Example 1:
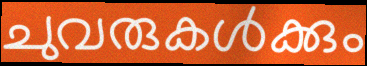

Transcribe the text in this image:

ചുവരുകൾക്കും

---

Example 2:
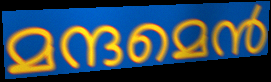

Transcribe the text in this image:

മന്ദമെൻ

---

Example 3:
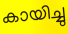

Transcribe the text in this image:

കായിച്ചു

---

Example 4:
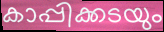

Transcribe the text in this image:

കാപ്പിക്കടയും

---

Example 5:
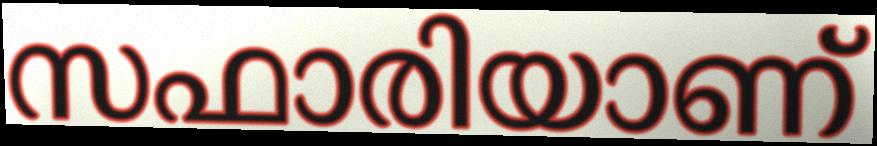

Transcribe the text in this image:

സഫാരിയാണ്